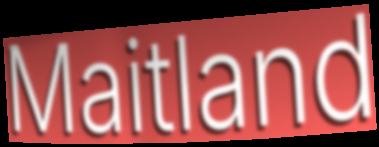
Maitland